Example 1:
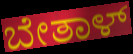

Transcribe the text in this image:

ಬೇತಾಳ್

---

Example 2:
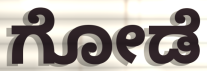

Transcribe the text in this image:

ಗೋಡೆ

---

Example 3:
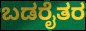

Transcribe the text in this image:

ಬಡರೈತರ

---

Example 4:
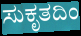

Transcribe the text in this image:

ಸುಕೃತದಿಂ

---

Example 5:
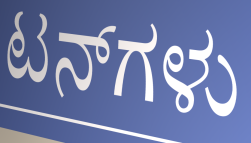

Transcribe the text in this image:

ಟನ್‌ಗಳು